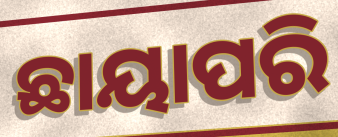
ଛାୟାପରି